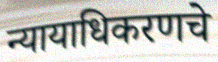
न्यायाधिकरणचे